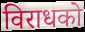
विराधको